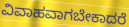
ವಿವಾಹವಾಗಬೇಕಾದರೆ